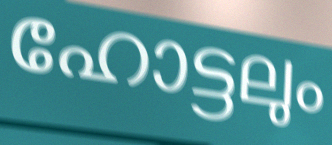
ഹോട്ടലും